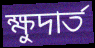
ক্ষুদার্ত